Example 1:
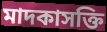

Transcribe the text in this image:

মাদকাসক্তি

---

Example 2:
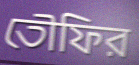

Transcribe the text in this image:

তৌফির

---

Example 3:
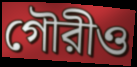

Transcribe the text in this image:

গৌরীও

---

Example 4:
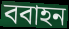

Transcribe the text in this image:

ববাহন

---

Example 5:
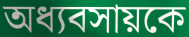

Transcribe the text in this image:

অধ্যবসায়কে